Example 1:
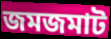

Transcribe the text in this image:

জমজমাট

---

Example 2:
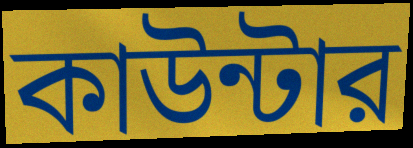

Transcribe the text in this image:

কাউন্টার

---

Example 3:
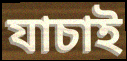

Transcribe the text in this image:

যাচাই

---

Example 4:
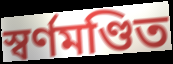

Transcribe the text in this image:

স্বর্ণমণ্ডিত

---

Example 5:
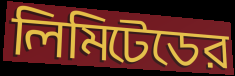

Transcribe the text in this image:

লিমিটেডের